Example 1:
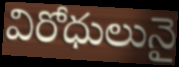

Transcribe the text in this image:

విరోధులునై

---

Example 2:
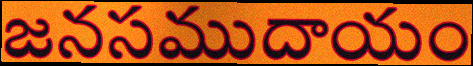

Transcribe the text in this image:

జనసముదాయం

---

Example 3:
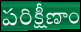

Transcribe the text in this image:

పరిక్షీణాం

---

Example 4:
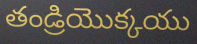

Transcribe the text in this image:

తండ్రియొక్కయు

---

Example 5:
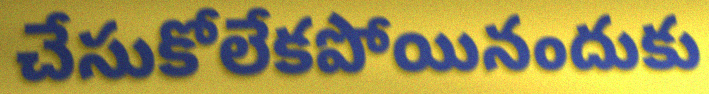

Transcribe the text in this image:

చేసుకోలేకపోయినందుకు